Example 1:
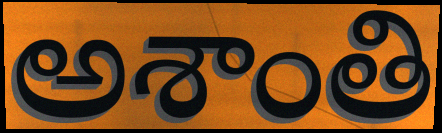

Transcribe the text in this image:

అశాంతి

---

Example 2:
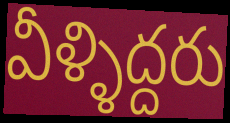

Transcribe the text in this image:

వీళ్ళిద్దరు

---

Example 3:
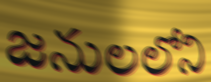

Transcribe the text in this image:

జనులలోని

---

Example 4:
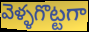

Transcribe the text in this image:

వెళ్ళగొట్టగా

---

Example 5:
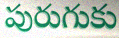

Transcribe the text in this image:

పురుగుకు